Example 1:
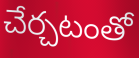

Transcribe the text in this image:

చేర్చటంతో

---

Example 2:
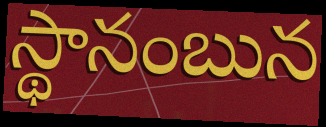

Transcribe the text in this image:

స్థానంబున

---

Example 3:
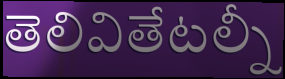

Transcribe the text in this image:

తెలివితేటల్నీ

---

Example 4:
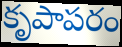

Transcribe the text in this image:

కృపాపరం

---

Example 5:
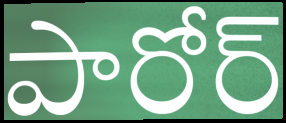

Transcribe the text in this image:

పారోర్